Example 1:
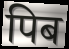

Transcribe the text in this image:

पिब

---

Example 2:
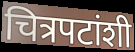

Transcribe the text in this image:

चित्रपटांशी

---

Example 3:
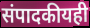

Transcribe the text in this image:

संपादकीयही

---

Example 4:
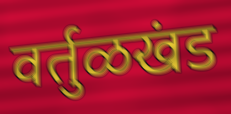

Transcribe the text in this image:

वर्तुळखंड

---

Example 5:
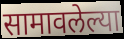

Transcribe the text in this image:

सामावलेल्या